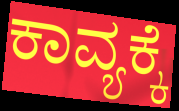
ಕಾವ್ಯಕ್ಕೆ